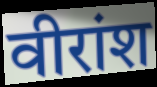
वीरांश